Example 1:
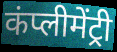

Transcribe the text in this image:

कंप्लीमेंट्री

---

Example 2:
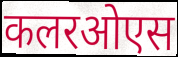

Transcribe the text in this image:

कलरओएस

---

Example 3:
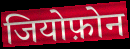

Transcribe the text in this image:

जियोफ़ोन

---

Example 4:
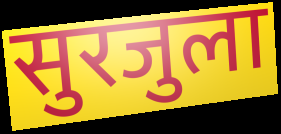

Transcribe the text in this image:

सुरजुला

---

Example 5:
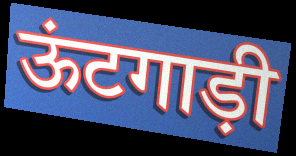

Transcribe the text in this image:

ऊंटगाड़ी